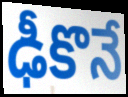
ఢీకొనే